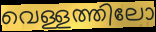
വെള്ളത്തിലോ